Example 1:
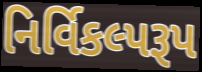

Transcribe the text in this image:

નિર્વિકલ્પરૂપ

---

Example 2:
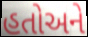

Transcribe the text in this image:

હતોઅને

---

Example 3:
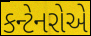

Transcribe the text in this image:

કન્ટેનરોએ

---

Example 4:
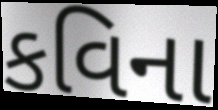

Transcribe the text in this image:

કવિના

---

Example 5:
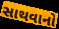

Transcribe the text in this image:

સાથવાનો